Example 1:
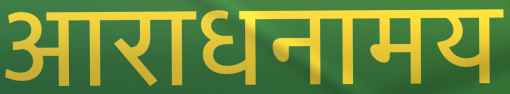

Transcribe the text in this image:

आराधनामय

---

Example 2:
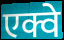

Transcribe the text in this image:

एक्वे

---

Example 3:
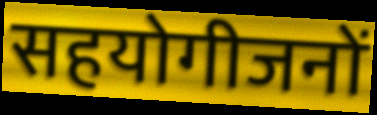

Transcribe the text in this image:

सहयोगीजनों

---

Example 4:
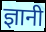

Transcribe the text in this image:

ज्ञानी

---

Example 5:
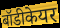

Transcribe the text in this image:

बॉडीकेयर